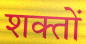
शक्तों